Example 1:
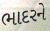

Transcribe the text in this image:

ભાદરને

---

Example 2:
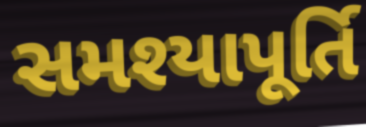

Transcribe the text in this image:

સમશ્યાપૂર્તિ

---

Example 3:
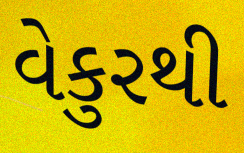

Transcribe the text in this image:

વેકુરથી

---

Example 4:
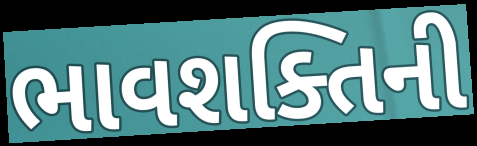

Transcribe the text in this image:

ભાવશક્તિની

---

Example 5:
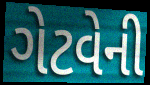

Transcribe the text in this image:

ગેટવેની